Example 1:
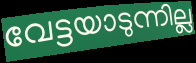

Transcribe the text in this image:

വേട്ടയാടുന്നില്ല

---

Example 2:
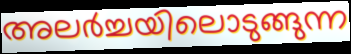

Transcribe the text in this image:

അലർച്ചയിലൊടുങ്ങുന്ന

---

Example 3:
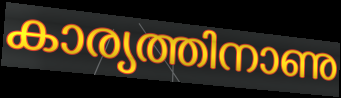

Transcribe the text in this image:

കാര്യത്തിനാണു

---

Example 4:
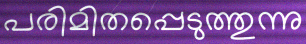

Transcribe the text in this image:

പരിമിതപ്പെടുത്തുന്നു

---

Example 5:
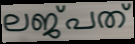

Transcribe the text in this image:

ലജ്പത്